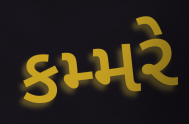
કમ્મરે